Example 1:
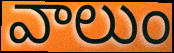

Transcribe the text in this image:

వాలుం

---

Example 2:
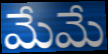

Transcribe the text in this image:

మేమే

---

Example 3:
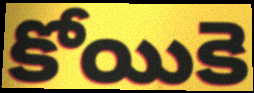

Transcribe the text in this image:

కోయికె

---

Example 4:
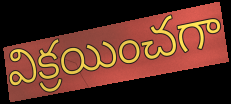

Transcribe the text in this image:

విక్రయించగా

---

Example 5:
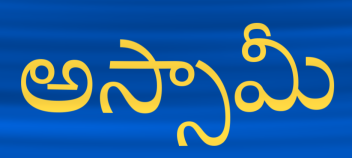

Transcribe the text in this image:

అస్సామీ